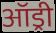
ऑड्री